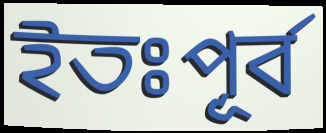
ইতঃপূর্ব